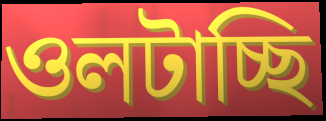
ওলটাচ্ছি